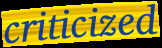
criticized